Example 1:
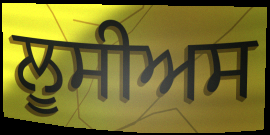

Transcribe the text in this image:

ਲੂਸੀਅਸ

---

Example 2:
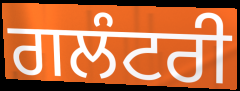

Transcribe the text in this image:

ਗਲੰਟਰੀ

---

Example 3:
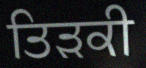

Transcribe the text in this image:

ਤਿੜਕੀ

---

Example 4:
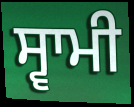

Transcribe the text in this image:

ਸ੍ਵਾਮੀ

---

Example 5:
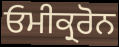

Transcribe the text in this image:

ਓਮੀਕ੍ਰਰੋਨ